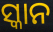
ସ୍କାନ